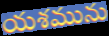
యశమును